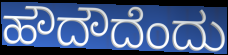
ಹೌದೌದೆಂದು